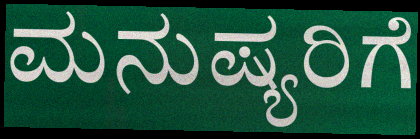
ಮನುಷ್ಯರಿಗೆ